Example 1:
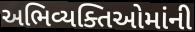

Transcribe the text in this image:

અભિવ્યક્તિઓમાંની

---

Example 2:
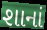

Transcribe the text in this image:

શાનાં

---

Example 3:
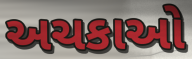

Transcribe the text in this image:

અચકાઓ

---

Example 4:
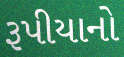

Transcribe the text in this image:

રૂપીયાનો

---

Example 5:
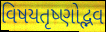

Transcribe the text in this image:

વિષયતૃષ્ણોદ્ભવ